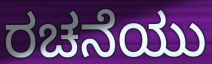
ರಚನೆಯು